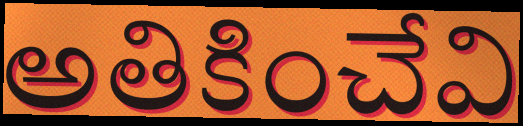
అతికించేవి